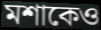
মশাকেও